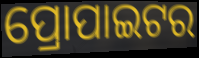
ପ୍ରୋପାଇଟର